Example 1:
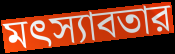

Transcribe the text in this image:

মৎস্যাবতার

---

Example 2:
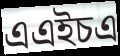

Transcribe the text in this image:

এএইচএ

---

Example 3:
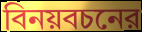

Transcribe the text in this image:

বিনয়বচনের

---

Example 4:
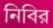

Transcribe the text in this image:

নিবির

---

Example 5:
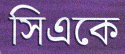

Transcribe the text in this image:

সিএকে